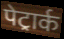
पेट्रार्क